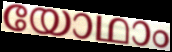
യോഥാം